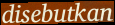
disebutkan